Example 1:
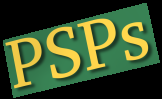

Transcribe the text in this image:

PSPs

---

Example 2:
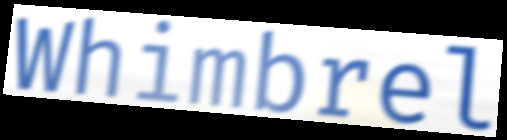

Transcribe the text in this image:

Whimbrel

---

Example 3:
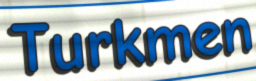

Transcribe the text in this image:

Turkmen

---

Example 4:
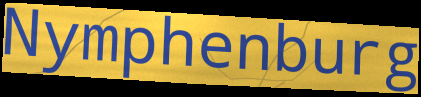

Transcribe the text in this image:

Nymphenburg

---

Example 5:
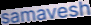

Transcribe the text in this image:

samavesh